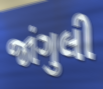
જાંગુલી